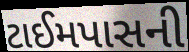
ટાઈમપાસની